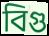
বিগু